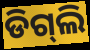
ଡିଗ୍‌ଲି